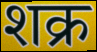
शक्र